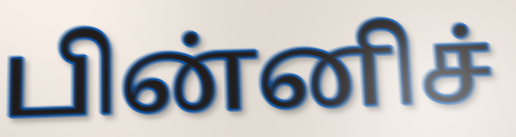
பின்னிச்